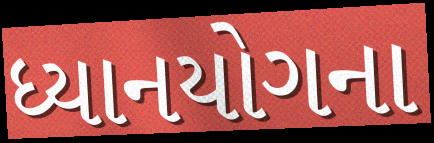
ધ્યાનયોગના